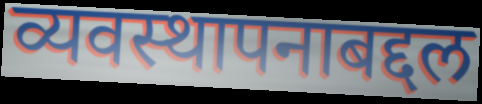
व्यवस्थापनाबद्दल